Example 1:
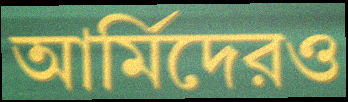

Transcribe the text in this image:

আর্মিদেরও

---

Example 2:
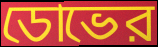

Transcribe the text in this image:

ডোভের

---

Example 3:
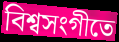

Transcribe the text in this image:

বিশ্বসংগীতে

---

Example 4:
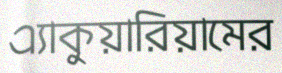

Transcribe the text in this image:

এ্যাকুয়ারিয়ামের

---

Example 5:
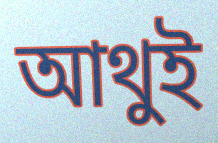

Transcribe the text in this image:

আথুই